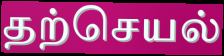
தற்செயல்